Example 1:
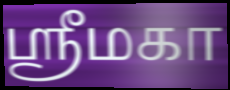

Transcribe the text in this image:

ஸ்ரீமகா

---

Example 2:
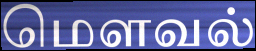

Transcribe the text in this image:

மௌவல்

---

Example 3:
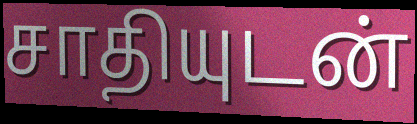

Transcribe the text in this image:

சாதியுடன்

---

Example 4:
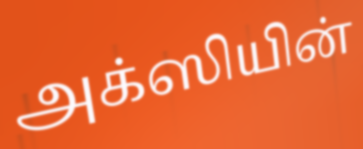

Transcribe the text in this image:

அக்ஸியின்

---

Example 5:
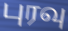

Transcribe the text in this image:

புரவு